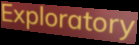
Exploratory